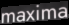
maxima